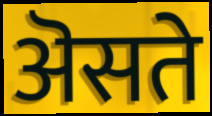
ऄसते